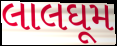
લાલઘૂમ